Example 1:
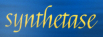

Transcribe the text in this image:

synthetase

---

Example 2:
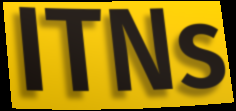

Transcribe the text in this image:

ITNs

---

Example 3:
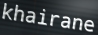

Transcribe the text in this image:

khairane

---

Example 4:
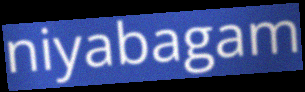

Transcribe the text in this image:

niyabagam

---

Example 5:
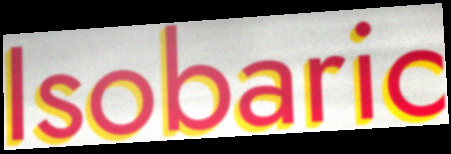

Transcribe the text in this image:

Isobaric